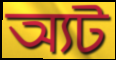
অ্যট